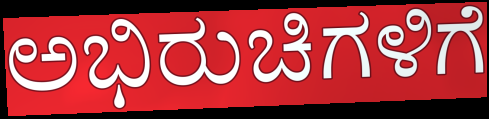
ಅಭಿರುಚಿಗಳಿಗೆ